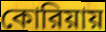
কোরিয়ায়